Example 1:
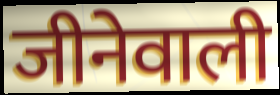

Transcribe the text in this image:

जीनेवाली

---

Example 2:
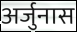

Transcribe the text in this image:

अर्जुनास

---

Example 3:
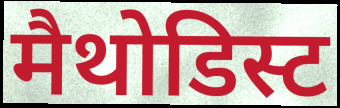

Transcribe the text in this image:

मैथोडिस्ट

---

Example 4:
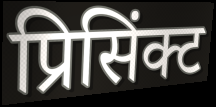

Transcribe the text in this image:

प्रिसिंक्ट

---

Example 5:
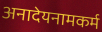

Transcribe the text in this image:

अनादेयनामकर्म